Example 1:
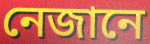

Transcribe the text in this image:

নেজানে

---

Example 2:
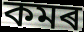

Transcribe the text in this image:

কমৰ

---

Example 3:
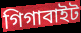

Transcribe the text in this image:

গিগাবাইট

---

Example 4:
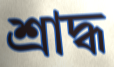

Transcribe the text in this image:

শ্ৰাদ্ধ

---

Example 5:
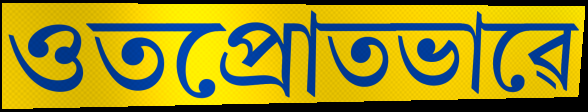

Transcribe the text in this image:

ওতপ্ৰোতভাৱে